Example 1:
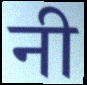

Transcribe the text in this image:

नी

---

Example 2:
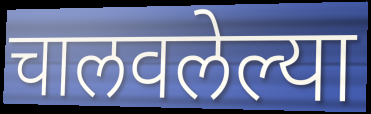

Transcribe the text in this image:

चालवलेल्या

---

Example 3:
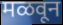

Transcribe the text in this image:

मळवून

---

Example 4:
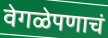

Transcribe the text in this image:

वेगळेपणाचं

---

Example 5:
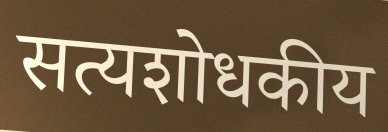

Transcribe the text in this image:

सत्यशोधकीय